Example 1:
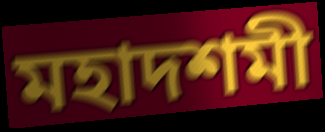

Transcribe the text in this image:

মহাদশমী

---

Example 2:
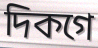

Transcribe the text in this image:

দিকগে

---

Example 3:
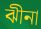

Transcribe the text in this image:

ঝীনা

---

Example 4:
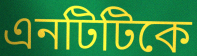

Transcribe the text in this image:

এনটিটিকে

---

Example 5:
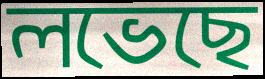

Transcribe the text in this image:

লভেছে